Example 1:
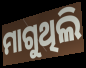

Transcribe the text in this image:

ମାଗୁଥିଲି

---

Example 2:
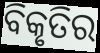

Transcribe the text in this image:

ବିକୃତିର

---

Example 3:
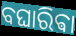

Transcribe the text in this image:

ବଘାରିଵା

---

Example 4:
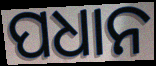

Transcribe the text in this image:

ପଧାନ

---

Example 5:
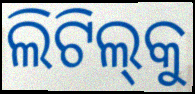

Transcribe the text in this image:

ଲିଟିଲ୍‌କୁ